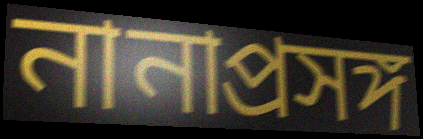
নানাপ্রসঙ্গ